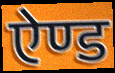
ऐण्ड